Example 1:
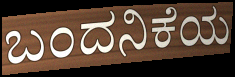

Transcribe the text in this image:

ಬಂದನಿಕೆಯ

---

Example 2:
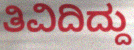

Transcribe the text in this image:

ತಿವಿದಿದ್ದು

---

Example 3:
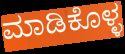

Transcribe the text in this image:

ಮಾಡಿಕೊಳ್ಳ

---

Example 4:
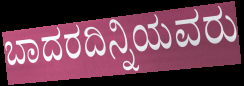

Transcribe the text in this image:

ಬಾದರದಿನ್ನಿಯವರು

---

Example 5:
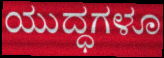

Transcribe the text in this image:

ಯುದ್ಧಗಳೂ